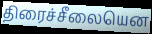
திரைச்சீலையென